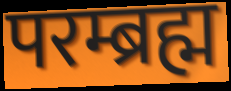
परम्ब्रह्म